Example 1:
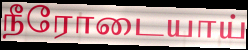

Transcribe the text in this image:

நீரோடையாய்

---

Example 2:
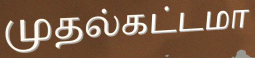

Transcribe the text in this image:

முதல்கட்டமா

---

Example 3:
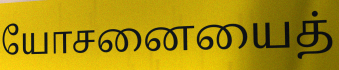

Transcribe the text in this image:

யோசனையைத்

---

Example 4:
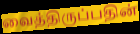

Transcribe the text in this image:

வைத்திருப்பதின்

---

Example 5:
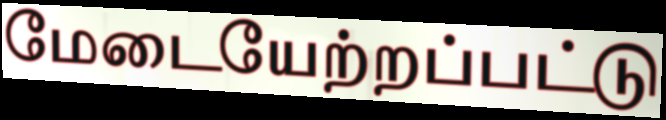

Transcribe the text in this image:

மேடையேற்றப்பட்டு